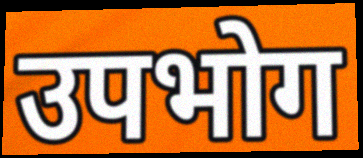
उपभोग